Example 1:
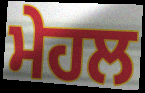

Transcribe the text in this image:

ਮੇਹਲ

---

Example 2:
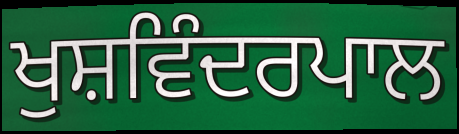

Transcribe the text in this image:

ਖੁਸ਼ਵਿੰਦਰਪਾਲ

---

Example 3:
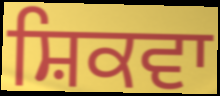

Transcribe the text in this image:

ਸ਼ਿਕਵਾ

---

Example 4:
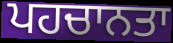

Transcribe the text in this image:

ਪਹਚਾਨਤਾ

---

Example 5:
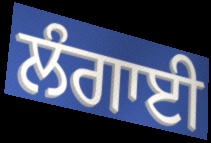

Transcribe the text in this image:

ਲੰਗਾਈ